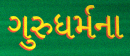
ગુરુધર્મના